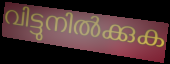
വിട്ടുനിൽക്കുക